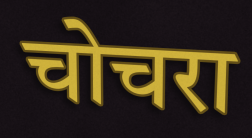
चोचरा